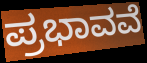
ಪ್ರಭಾವವೆ